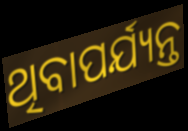
ଥିବାପର୍ଯ୍ୟନ୍ତ